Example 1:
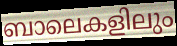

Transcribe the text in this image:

ബാലെകളിലും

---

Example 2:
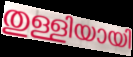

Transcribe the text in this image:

തുള്ളിയായി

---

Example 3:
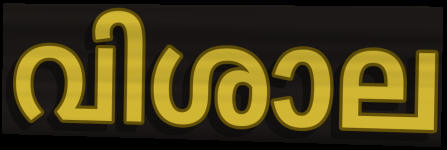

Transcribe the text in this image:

വിശാല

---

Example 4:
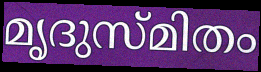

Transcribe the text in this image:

മൃദുസ്മിതം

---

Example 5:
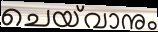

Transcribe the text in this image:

ചെയ്‌വാനും